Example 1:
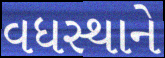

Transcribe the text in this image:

વધસ્થાને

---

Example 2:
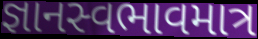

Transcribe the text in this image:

જ્ઞાનસ્વભાવમાત્ર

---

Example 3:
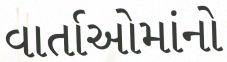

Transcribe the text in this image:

વાર્તાઓમાંનો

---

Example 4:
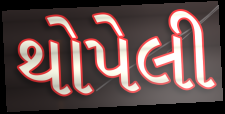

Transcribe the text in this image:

થોપેલી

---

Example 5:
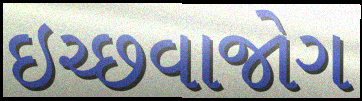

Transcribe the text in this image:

ઇચ્છવાજોગ